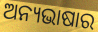
ଅନ୍ୟଭାଷାର